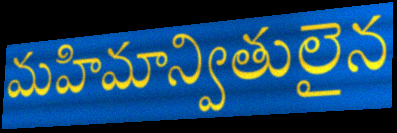
మహిమాన్వితులైన